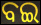
ବଇ